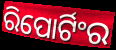
ରିପୋର୍ଟିଂର